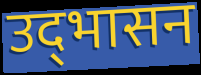
उद्भासन